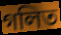
গলিত